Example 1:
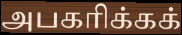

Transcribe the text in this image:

அபகரிக்கக்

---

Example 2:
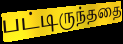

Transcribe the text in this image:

பட்டிருந்ததை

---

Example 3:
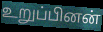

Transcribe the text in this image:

உறுப்பினன்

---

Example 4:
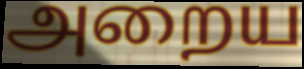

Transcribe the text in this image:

அறைய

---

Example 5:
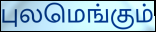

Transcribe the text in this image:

புலமெங்கும்